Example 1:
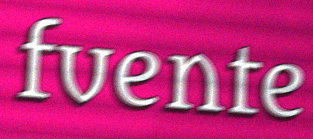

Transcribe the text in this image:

fuente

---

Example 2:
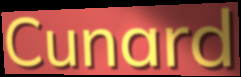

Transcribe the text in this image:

Cunard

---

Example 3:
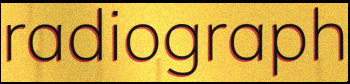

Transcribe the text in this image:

radiograph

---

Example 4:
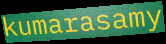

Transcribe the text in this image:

kumarasamy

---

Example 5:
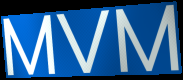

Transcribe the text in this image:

MVM